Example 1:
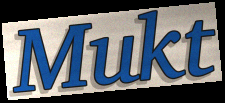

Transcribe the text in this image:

Mukt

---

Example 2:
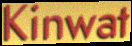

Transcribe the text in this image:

Kinwat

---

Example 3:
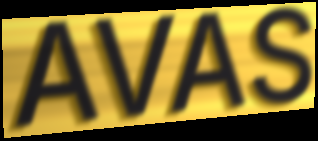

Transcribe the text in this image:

AVAS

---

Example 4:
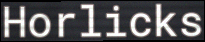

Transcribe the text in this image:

Horlicks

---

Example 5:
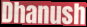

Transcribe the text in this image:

Dhanush